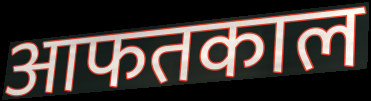
आफतकाल